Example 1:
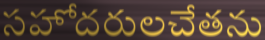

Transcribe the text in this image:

సహోదరులచేతను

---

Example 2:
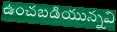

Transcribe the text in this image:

ఉంచబడియున్నవి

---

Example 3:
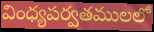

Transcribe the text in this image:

వింధ్యపర్వతములలో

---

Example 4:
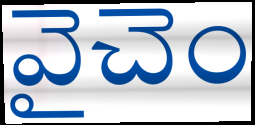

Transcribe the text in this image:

వైచెం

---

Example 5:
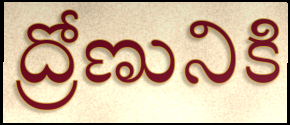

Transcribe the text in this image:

ద్రోణునికి